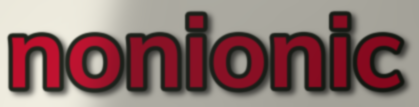
nonionic